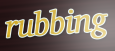
rubbing